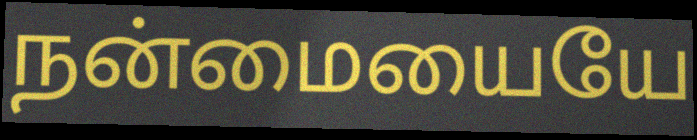
நன்மையையே